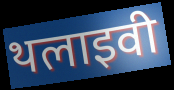
थलाइवी